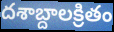
దశాబ్దాలక్రితం